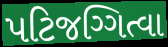
પટિજગ્ગિત્વા